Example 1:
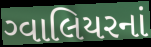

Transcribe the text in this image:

ગ્વાલિયરનાં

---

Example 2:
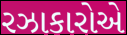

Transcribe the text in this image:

રઝાકારોએ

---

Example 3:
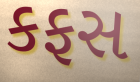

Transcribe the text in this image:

કફસ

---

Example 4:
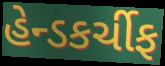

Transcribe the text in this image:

હેન્ડકર્ચીફ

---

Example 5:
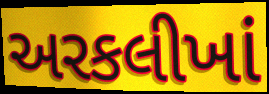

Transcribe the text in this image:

અરકલીખાં